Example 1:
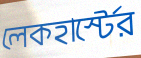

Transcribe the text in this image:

লেকহার্স্টের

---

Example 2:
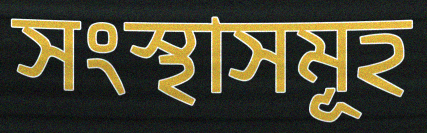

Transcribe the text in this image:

সংস্থাসমূহ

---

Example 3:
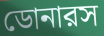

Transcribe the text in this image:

ডোনারস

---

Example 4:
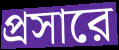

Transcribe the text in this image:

প্রসারে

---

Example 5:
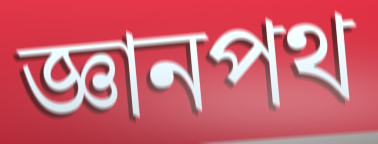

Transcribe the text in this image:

জ্ঞানপথ